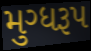
મુગ્ધરૂપ